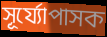
সূৰ্য্যোপাসক